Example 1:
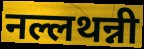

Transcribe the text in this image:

नल्लथन्नी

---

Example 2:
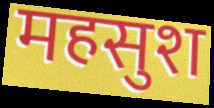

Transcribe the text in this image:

महसुश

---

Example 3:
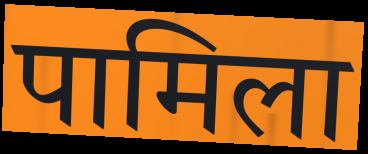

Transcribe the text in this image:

पामिला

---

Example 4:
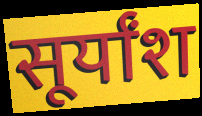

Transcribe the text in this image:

सूर्यांश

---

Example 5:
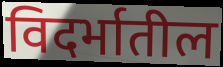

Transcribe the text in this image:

विदर्भातील